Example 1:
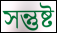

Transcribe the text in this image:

সন্তুষ্ট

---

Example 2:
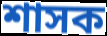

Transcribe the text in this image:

শাসক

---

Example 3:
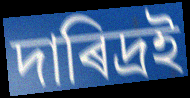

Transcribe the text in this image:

দাৰিদ্ৰই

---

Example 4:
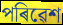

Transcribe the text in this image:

পৰিৱেশ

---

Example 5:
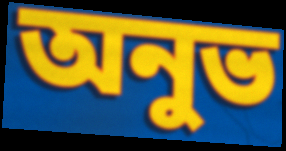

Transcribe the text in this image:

অনুভ